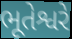
ભૂતેશ્વરે